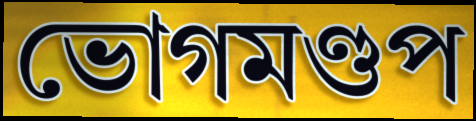
ভোগমণ্ডপ